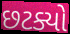
છટક્યો